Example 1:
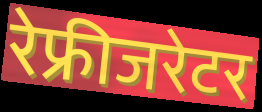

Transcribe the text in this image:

रेफ्रीजरेटर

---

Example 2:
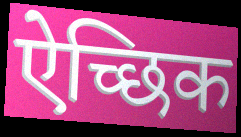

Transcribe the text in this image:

ऐच्छिक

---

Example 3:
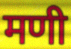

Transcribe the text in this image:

मणी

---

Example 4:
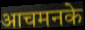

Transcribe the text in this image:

आचमनके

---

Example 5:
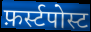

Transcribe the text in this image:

फ़र्स्टपोस्ट